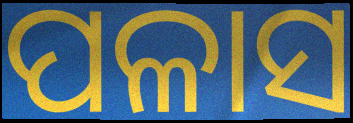
ପଳାସ